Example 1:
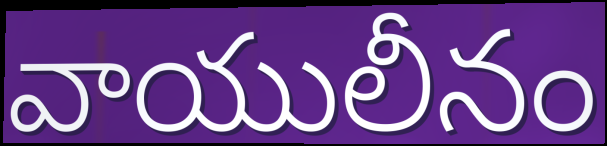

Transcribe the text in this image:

వాయులీనం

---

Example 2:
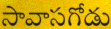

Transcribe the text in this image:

సావాసగోడు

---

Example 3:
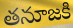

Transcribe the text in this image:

తనూజకి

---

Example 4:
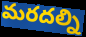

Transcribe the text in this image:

మరదల్ని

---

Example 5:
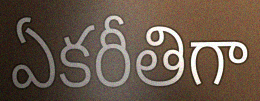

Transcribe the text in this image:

ఏకరీతిగా